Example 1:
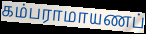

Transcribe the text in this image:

கம்பராமாயணப்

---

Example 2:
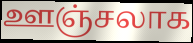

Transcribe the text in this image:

ஊஞ்சலாக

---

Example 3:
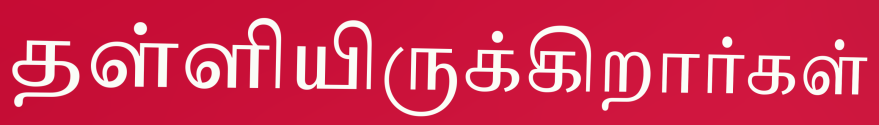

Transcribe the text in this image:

தள்ளியிருக்கிறார்கள்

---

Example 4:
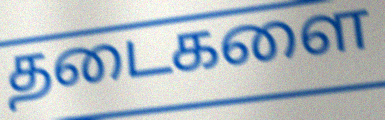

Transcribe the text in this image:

தடைகளை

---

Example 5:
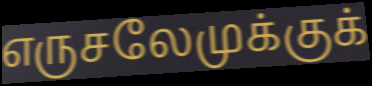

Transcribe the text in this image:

எருசலேமுக்குக்